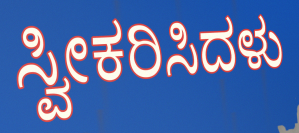
ಸ್ವೀಕರಿಸಿದಳು